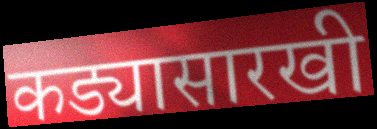
कड्यासारखी